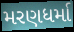
મરણધર્મા